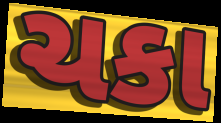
ચકા